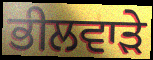
ਭੀਲਵਾੜੇ